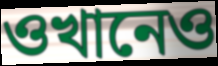
ওখানেও